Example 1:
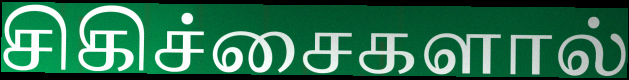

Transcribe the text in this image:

சிகிச்சைகளால்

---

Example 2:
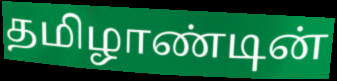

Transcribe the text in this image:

தமிழாண்டின்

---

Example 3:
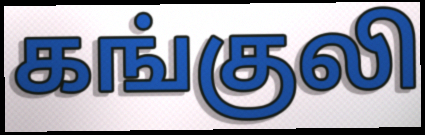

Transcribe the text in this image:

கங்குலி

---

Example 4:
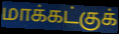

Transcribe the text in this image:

மாக்கட்குக்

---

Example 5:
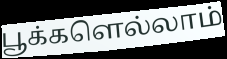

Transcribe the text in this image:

பூக்களெல்லாம்